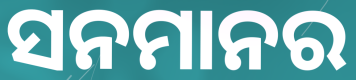
ସନମାନର